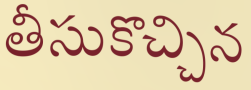
తీసుకొచ్చిన